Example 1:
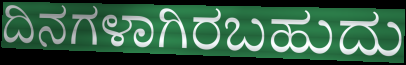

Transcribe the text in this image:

ದಿನಗಳಾಗಿರಬಹುದು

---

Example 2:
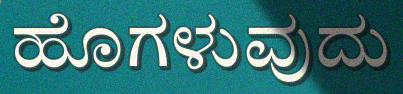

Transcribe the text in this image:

ಹೊಗಳುವುದು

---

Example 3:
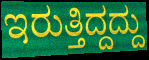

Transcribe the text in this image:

ಇರುತ್ತಿದ್ದದ್ದು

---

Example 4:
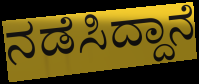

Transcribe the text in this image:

ನಡೆಸಿದ್ದಾನೆ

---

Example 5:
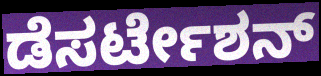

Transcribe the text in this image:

ಡೆಸರ್ಟೇಶನ್